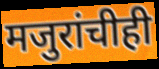
मजुरांचीही